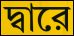
দ্বারে